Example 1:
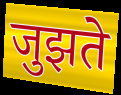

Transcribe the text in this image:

जुझते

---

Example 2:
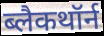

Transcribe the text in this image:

ब्लैकथॉर्न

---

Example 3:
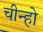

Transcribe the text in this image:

चीन्हो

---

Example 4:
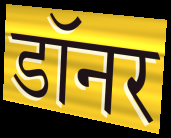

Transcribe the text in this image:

डॉनर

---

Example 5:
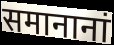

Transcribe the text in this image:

समानानां